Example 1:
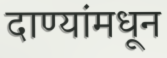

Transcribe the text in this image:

दाण्यांमधून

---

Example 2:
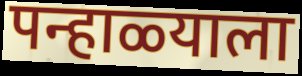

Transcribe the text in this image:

पन्हाळ्याला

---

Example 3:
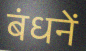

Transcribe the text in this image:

बंधनें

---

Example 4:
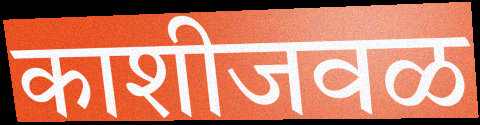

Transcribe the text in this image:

काशीजवळ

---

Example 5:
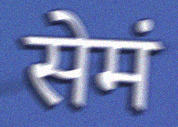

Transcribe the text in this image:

सेमं